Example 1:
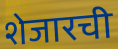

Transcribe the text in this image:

शेजारची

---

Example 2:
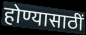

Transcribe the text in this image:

होण्यासाठीं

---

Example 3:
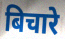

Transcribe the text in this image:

बिचारे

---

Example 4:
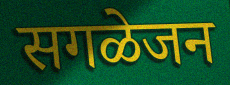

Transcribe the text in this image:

सगळेजन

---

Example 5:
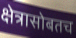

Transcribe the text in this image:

क्षेत्रासोबतच